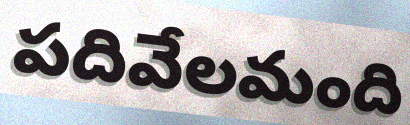
పదివేలమంది